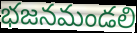
భజనమండలి